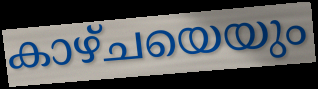
കാഴ്ചയെയും